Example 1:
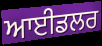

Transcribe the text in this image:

ਆਈਡਲਰ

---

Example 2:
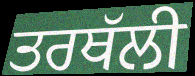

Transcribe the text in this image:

ਤਰਥੱਲੀ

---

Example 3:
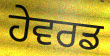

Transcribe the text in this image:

ਹੇਵਰਡ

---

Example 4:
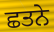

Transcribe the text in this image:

ਛਤਨੇ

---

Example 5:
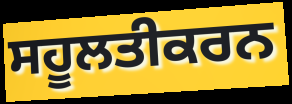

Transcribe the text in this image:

ਸਹੂਲਤੀਕਰਨ